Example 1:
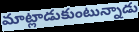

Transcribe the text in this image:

మాట్లాడుకుంటున్నాడు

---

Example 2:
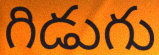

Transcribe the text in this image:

గిడుగు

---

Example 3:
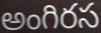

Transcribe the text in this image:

అంగిరస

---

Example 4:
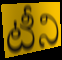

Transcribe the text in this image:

టీని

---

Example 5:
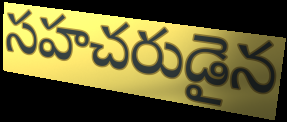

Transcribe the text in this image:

సహచరుడైన